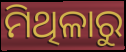
ମିଥିଳାରୁ